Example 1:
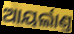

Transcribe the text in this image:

ଆୟର୍ଲାଣ୍ତ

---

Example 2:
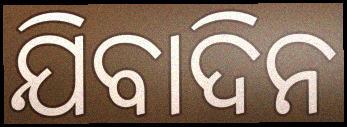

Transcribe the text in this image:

ଯିବାଦିନ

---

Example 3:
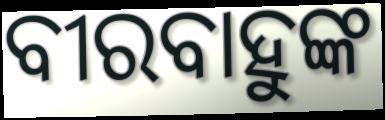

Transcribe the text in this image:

ବୀରବାହୁଙ୍କ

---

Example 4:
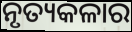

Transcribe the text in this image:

ନୃତ୍ୟକଳାର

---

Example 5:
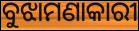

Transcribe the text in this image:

ବୁଝାମଣାକାରୀ